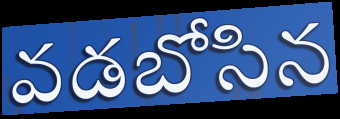
వడబోసిన